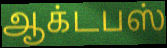
ஆக்டபஸ்